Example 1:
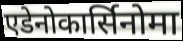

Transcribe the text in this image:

एडेनोकार्सिनोमा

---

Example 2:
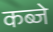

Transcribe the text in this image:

कब्जे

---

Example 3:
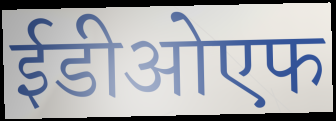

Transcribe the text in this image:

ईडीओएफ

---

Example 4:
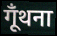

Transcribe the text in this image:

गूँथना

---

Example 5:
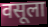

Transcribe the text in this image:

वसूला